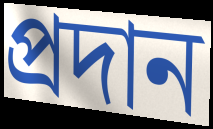
প্ৰদান